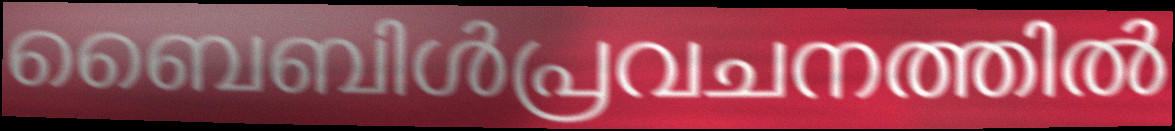
ബൈബിൾപ്രവചനത്തിൽ